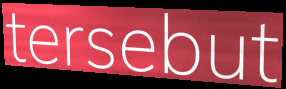
tersebut